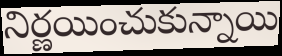
నిర్ణయించుకున్నాయి